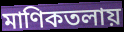
মাণিকতলায়